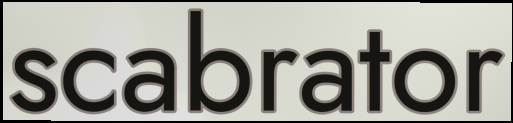
scabrator